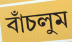
বাঁচলুম